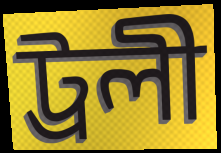
ট্ৰলী